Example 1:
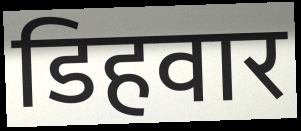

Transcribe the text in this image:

डिहवार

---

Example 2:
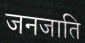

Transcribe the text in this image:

जनजाति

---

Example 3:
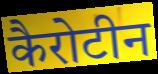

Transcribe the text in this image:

कैरोटीन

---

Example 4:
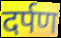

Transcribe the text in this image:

दर्पण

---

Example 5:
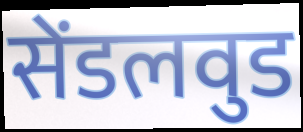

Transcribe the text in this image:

सेंडलवुड